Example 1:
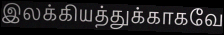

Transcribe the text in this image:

இலக்கியத்துக்காகவே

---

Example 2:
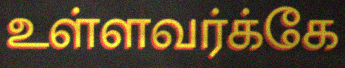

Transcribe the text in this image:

உள்ளவர்க்கே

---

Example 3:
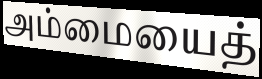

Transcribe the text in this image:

அம்மையைத்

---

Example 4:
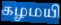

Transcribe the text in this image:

கழமயி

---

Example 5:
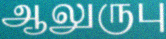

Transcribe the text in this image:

ஆலுருபு